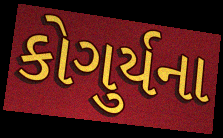
કોગુર્યના